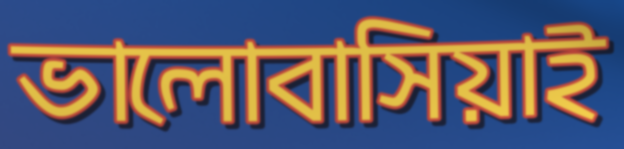
ভালোবাসিয়াই